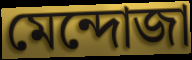
মেন্দোজা